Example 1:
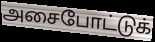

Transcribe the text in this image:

அசைபோட்டுக்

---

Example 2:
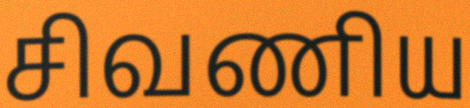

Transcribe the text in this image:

சிவணிய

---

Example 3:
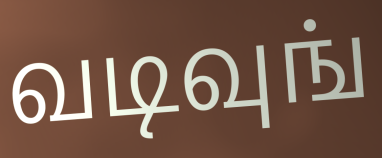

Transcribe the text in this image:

வடிவுங்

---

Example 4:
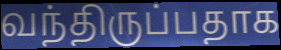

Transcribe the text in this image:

வந்திருப்பதாக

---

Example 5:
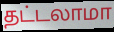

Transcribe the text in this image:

தட்டலாமா